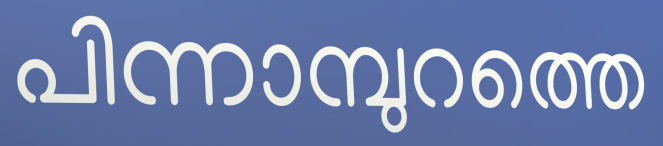
പിന്നാമ്പുറത്തെ